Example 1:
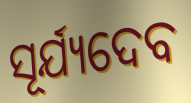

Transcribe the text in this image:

ସୂର୍ଯ୍ୟଦେବ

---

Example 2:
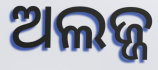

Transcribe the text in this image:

ଅଲଜ୍ଜ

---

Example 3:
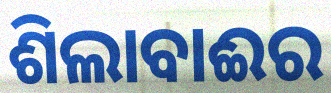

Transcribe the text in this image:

ଶିଲାବାଈର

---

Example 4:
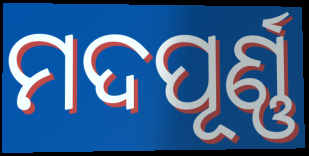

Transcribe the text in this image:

ମଦପୂର୍ଣ୍ଣ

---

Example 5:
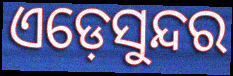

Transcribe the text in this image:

ଏଡ଼େସୁନ୍ଦର